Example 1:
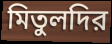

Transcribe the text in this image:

মিতুলদির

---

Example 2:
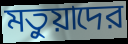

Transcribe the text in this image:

মতুয়াদের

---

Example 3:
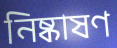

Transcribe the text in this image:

নিষ্কাষণ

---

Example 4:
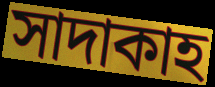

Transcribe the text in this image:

সাদাকাহ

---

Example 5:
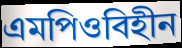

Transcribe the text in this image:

এমপিওবিহীন